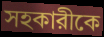
সহকারীকে